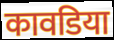
कावडिया